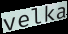
velka